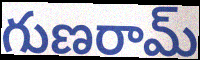
గుణరామ్